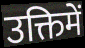
उक्तिमें